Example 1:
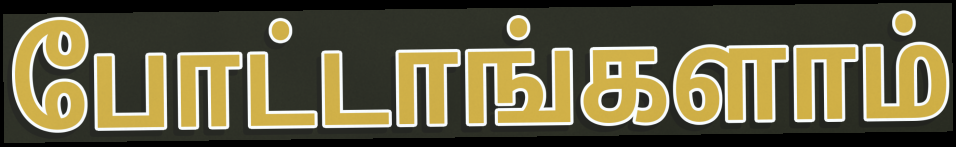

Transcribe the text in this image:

போட்டாங்களாம்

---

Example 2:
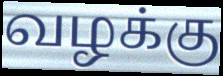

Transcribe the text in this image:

வழக்கு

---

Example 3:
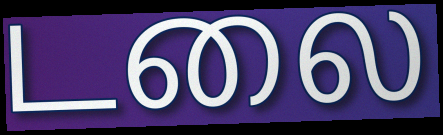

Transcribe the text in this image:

டலை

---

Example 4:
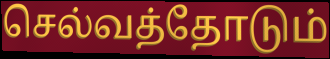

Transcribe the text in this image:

செல்வத்தோடும்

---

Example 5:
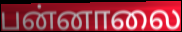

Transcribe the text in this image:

பன்னாலை